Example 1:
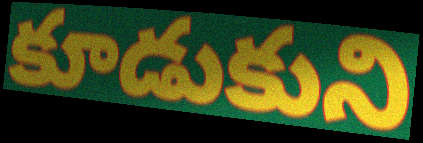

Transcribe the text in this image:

కూడుకుని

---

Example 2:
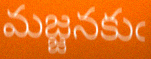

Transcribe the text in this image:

మజ్జనకుఁ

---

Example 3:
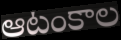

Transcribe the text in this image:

ఆటంకాల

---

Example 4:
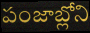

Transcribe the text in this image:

పంజాబ్లోని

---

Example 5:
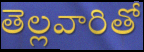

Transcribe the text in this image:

తెల్లవారితో